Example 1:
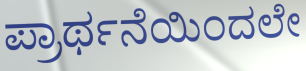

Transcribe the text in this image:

ಪ್ರಾರ್ಥನೆಯಿಂದಲೇ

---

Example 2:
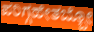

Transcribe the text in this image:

ಪರಿಗ್ಗಹೇತಬ್ಬೋ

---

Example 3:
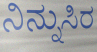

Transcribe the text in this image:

ನಿನ್ನುಸಿರ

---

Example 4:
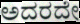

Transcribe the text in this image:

ಅದರದೇ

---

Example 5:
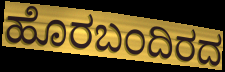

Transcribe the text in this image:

ಹೊರಬಂದಿರದ